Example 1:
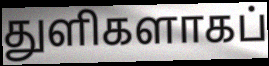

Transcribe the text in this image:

துளிகளாகப்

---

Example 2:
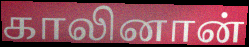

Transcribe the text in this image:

காலினான்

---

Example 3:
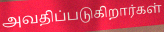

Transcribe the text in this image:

அவதிப்படுகிறார்கள்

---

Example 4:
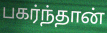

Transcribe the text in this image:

பகர்ந்தான்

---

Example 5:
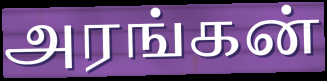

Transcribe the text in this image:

அரங்கன்